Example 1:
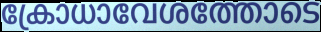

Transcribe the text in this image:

ക്രോധാവേശത്തോടെ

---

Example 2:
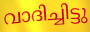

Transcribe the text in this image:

വാദിച്ചിട്ടു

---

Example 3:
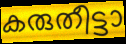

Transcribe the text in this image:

കരുതീട്ടാ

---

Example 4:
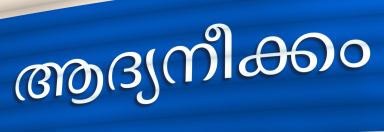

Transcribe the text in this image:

ആദ്യനീക്കം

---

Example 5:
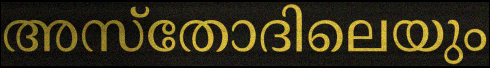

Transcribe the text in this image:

അസ്തോദിലെയും